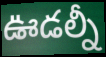
ఊడల్నీ